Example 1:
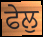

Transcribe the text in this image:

ਫੇਲੁ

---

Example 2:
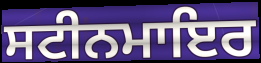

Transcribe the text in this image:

ਸਟੀਨਮਾਇਰ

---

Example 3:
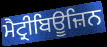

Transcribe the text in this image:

ਮੈਟ੍ਰੀਬਿਊਜ਼ਿਨ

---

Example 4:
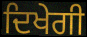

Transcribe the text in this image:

ਦਿਖੇਗੀ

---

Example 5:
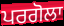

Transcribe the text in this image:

ਪਰਗੋਲਾ